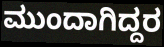
ಮುಂದಾಗಿದ್ದರ